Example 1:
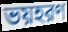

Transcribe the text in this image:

ভয়হরণ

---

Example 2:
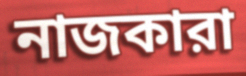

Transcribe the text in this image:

নাজকারা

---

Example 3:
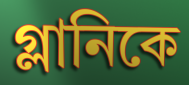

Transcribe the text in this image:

গ্লানিকে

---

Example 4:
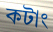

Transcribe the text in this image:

কটাং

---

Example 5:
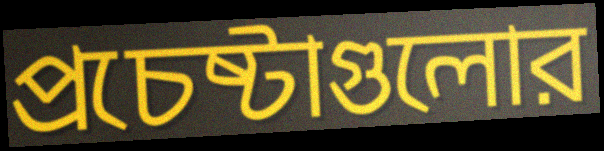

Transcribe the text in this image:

প্রচেষ্টাগুলোর